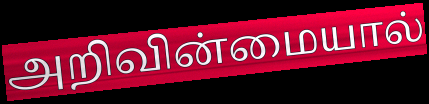
அறிவின்மையால்